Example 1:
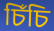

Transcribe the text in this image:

চিঁচি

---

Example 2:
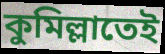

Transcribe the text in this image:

কুমিল্লাতেই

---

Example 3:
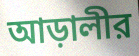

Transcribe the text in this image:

আড়ালীর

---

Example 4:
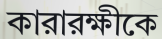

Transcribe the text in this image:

কারারক্ষীকে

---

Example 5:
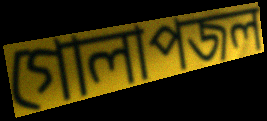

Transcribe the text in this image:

গোলাপজল